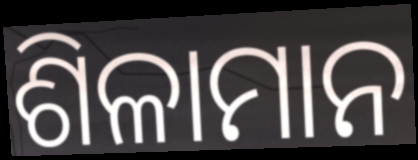
ଶିଳାମାନ